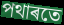
পথাৰতে